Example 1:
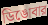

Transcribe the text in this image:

ডিঙোবার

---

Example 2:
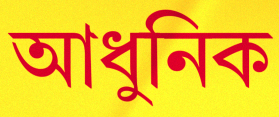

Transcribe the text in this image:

আধুনিক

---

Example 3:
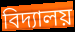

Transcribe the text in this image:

বিদ্যালয়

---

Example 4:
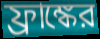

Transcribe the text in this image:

ফ্রাঙ্কের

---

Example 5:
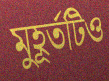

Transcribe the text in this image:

মুহূর্তটিও